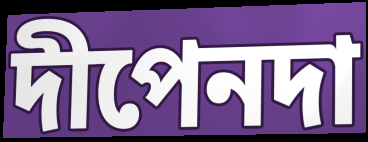
দীপেনদা